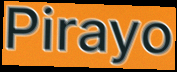
Pirayo